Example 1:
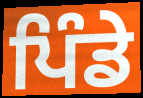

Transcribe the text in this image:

ਪਿੰਡੇ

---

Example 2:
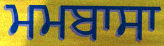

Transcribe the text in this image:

ਮਮਬਾਸਾ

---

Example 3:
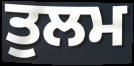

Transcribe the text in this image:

ਤੁਲਮ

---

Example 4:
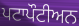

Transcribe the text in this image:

ਪਟਾਪੌਟੀਅਨ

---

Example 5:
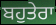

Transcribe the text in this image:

ਬਹੁਤੇਰਾ